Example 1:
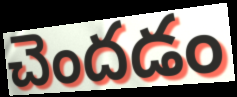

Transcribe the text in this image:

చెందడం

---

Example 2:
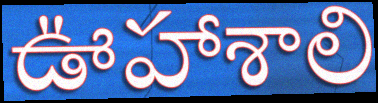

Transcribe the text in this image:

ఊహాశాలి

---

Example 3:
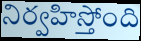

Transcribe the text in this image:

నిర్వహిస్తోంది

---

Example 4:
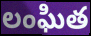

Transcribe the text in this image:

లంఘిత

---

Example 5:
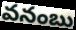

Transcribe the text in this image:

వనంబు